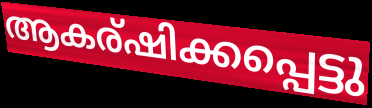
ആകര്ഷിക്കപ്പെട്ടു